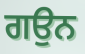
ਗਉਨ